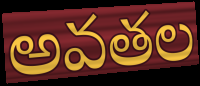
అవతల